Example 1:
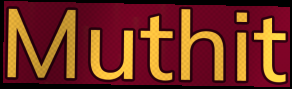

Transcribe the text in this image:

Muthit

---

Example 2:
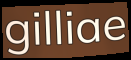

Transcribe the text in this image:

gilliae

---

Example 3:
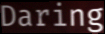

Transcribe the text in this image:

Daring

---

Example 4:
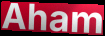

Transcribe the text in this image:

Aham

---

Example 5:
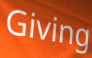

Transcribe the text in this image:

Giving